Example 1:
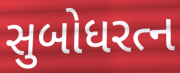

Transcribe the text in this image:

સુબોધરત્ન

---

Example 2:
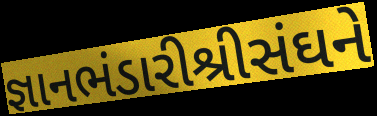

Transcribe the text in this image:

જ્ઞાનભંડારીશ્રીસંઘને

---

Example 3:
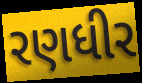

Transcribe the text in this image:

રણધીર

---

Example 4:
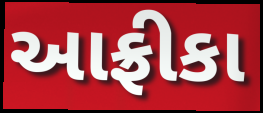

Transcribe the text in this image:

આફ્રીકા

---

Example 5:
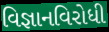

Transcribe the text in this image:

વિજ્ઞાનવિરોધી